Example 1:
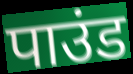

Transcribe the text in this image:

पाउंड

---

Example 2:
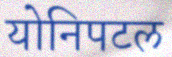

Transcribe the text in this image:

योनिपटल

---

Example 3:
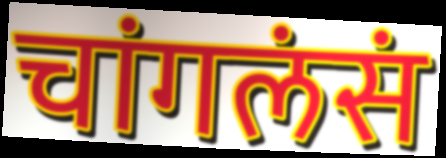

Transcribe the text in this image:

चांगलंसं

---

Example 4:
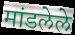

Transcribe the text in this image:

मांडलेले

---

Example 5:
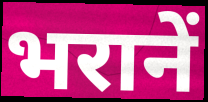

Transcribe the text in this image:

भरानें